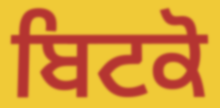
ਬਿਟਕੋ